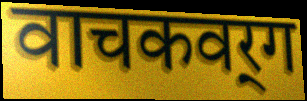
वाचकवर्ग